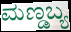
ಮಣ್ಡಬ್ಯ